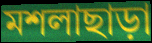
মশলাছাড়া